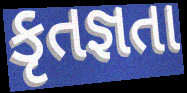
કૃતજ્ઞતા